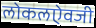
लोकलऐवजी